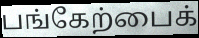
பங்கேற்பைக்